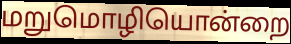
மறுமொழியொன்றை